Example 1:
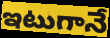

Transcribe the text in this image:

ఇటుగానే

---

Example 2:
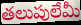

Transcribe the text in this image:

తలుపులేమీ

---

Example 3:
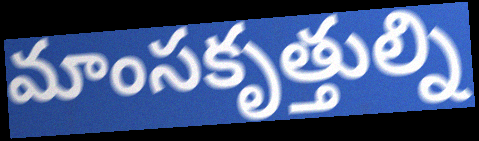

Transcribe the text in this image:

మాంసకృత్తుల్ని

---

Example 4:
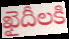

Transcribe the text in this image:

ఖైదీలకి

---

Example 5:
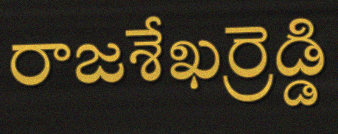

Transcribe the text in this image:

రాజశేఖర్రెడ్డి